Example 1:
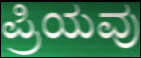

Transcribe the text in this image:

ಪ್ರಿಯವು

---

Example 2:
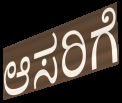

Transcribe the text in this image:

ಆಸರಿಗೆ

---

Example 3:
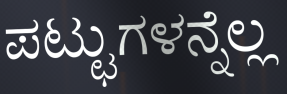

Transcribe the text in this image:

ಪಟ್ಟುಗಳನ್ನೆಲ್ಲ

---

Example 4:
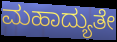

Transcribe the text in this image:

ಮಹಾದ್ಯುತೇ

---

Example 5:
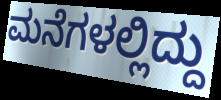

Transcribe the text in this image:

ಮನೆಗಳಲ್ಲಿದ್ದು